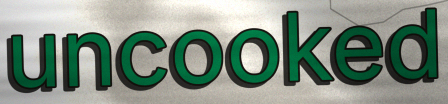
uncooked